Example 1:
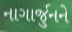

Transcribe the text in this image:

નાગાર્જુનને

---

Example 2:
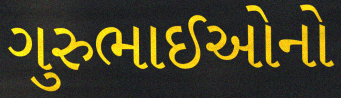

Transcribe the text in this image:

ગુરુભાઈઓનો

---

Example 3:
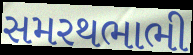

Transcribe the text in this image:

સમરથભાભી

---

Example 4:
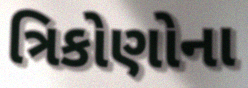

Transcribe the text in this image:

ત્રિકોણોના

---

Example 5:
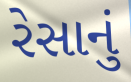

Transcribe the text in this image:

રેસાનું